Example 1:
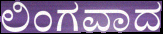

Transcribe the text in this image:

ಲಿಂಗವಾದ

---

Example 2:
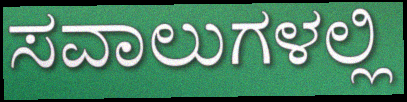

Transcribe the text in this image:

ಸವಾಲುಗಳಲ್ಲಿ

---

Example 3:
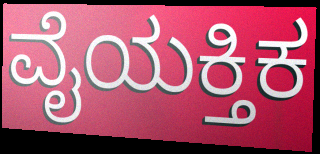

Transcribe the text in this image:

ವೈಯಕ್ತಿಕ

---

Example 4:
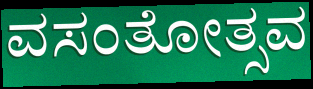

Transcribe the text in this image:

ವಸಂತೋತ್ಸವ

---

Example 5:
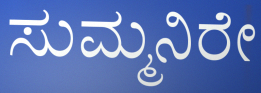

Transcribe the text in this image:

ಸುಮ್ಮನಿರೇ